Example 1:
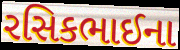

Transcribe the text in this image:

રસિકભાઈના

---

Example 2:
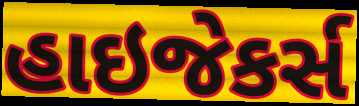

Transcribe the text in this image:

હાઇજેકર્સ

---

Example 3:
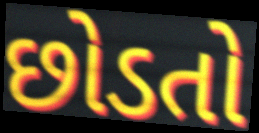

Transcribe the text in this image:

છોડતો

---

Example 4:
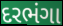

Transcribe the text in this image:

દરભંગા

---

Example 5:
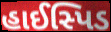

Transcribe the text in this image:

હાઈસ્પિડ